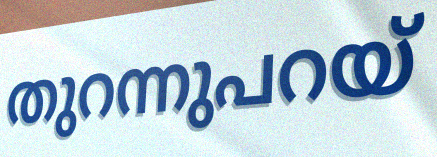
തുറന്നുപറയ്